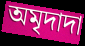
অমৃদাদা